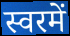
स्वरमें